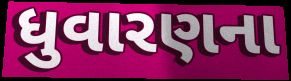
ધુવારણના